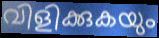
വിളിക്കുകയും